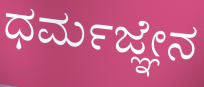
ಧರ್ಮಜ್ಞೇನ